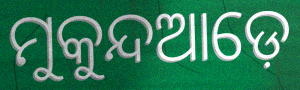
ମୁକୁନ୍ଦଆଡ଼େ